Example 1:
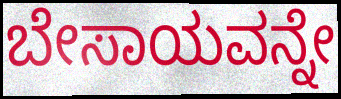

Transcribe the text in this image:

ಬೇಸಾಯವನ್ನೇ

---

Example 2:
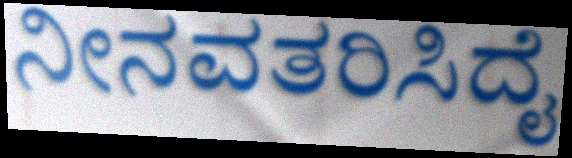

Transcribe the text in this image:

ನೀನವತರಿಸಿದೈ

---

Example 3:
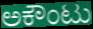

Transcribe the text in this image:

ಅಕೌಂಟು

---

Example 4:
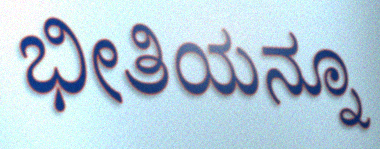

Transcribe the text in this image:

ಭೀತಿಯನ್ನೂ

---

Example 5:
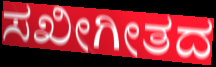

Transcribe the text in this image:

ಸಖೀಗೀತದ